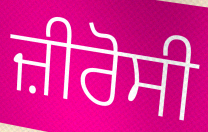
ਜ਼ੀਰੋਸੀ